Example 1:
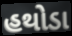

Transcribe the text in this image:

હથોડા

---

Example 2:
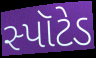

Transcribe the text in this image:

સ્પૉટેડ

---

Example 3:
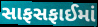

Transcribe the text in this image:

સાફસફાઈમાં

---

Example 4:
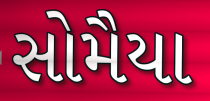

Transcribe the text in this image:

સોમૈયા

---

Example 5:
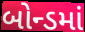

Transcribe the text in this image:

બોન્ડમાં